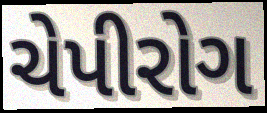
ચેપીરોગ